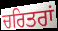
ਚਰਿਤਰਾਂ